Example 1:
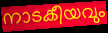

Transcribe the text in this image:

നാടകീയവും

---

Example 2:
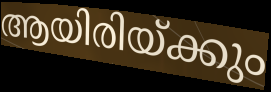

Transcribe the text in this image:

ആയിരിയ്ക്കും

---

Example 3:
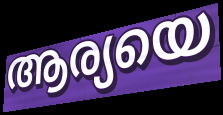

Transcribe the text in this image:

ആര്യയെ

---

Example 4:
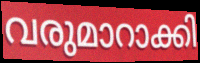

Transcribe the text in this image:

വരുമാറാക്കി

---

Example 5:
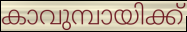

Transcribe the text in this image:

കാവുമ്പായിക്ക്